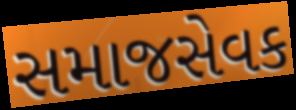
સમાજસેવક